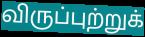
விருப்புற்றுக்